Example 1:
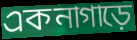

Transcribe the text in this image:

একনাগাড়ে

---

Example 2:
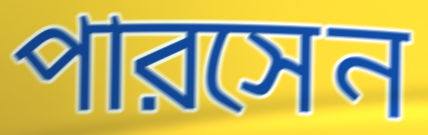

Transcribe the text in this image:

পারসেন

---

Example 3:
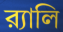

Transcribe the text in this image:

র‍্যালি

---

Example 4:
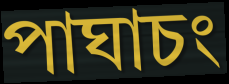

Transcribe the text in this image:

পাঘাচং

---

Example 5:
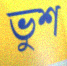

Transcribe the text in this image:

ভুশ